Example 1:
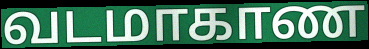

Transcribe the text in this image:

வடமாகாண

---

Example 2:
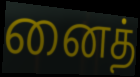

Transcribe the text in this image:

னைத்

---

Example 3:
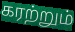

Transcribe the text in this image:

கரற்றும்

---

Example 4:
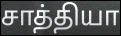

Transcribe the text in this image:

சாத்தியா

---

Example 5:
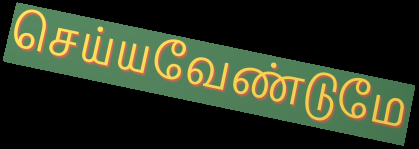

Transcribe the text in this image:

செய்யவேண்டுமே